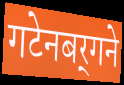
गटेनबर्गने